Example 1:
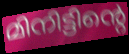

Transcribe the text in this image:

മിനിട്ടിന്റെ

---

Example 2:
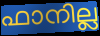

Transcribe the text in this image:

ഫാനില്ല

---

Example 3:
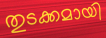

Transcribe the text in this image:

തുടക്കമായി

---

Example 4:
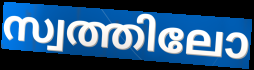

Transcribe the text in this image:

സ്വത്തിലോ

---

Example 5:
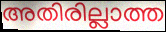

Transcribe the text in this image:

അതിരില്ലാത്ത